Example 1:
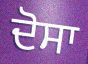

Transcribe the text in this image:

ਦੋਸਾ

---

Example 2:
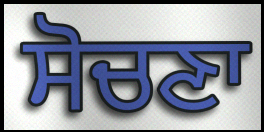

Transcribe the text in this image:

ਸੋਚਣਾ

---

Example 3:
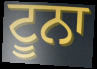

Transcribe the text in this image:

ਟੂਨਾ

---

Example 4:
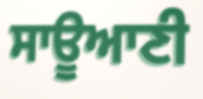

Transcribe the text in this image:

ਸਾਊਆਣੀ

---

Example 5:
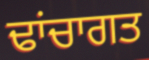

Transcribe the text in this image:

ਢਾਂਚਾਗਤ